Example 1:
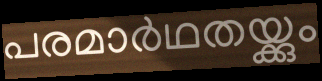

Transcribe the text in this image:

പരമാർഥതയ്ക്കും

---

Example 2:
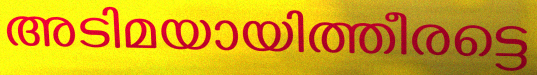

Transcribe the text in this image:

അടിമയായിത്തീരട്ടെ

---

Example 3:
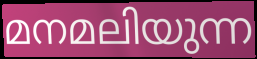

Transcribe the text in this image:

മനമലിയുന്ന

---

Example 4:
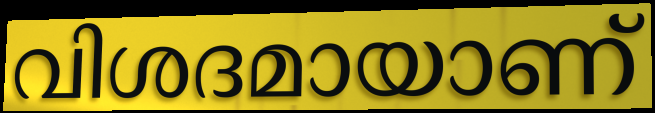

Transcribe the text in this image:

വിശദമായാണ്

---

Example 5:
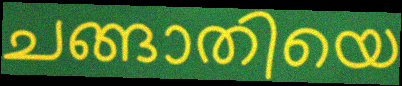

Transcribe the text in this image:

ചങ്ങാതിയെ